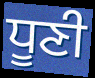
ਧੂਣੀ